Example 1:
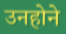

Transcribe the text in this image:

उनहोने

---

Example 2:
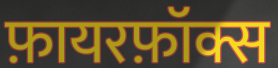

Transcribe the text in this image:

फ़ायरफ़ॉक्स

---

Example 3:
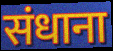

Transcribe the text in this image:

संधाना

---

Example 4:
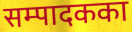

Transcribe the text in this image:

सम्पादकका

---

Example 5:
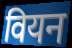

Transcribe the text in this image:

वियन